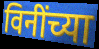
विनींच्या